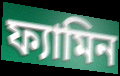
ফ্যামিন